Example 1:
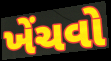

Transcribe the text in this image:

ખેંચવો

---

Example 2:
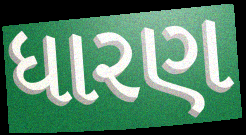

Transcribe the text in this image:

ધારણ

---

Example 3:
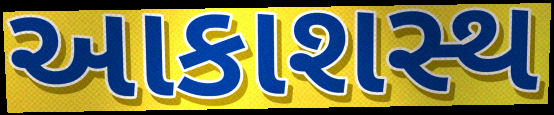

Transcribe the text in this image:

આકાશસ્થ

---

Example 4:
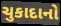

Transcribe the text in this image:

ચુકાદાનો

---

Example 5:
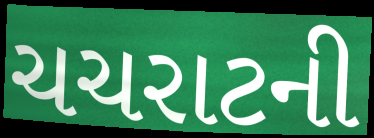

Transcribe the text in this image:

ચચરાટની